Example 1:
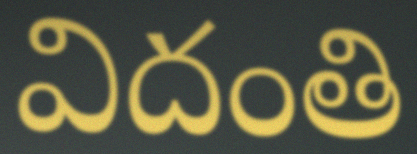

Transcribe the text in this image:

విదంతి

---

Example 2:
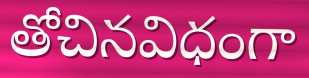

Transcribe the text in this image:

తోచినవిధంగా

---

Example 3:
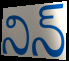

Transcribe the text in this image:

నిన్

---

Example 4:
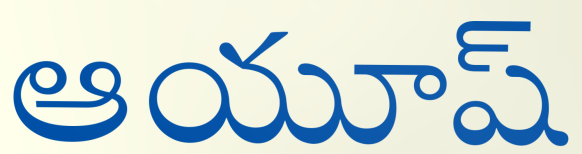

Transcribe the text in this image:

ఆయూష్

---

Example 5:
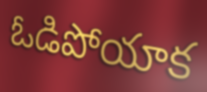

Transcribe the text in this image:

ఓడిపోయాక